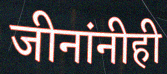
जीनांनीही